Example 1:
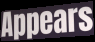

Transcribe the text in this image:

Appears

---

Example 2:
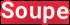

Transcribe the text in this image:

Soupe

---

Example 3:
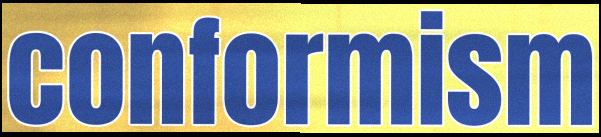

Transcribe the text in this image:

conformism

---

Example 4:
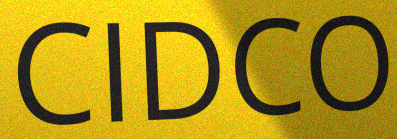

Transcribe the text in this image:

CIDCO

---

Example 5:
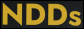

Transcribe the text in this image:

NDDs